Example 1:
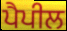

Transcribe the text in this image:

ਪੈਪੀਲ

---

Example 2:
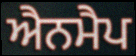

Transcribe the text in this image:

ਐਨਮੈਪ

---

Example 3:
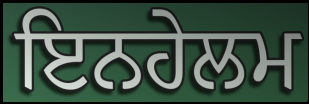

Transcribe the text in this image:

ਇਨਹੇਲਮ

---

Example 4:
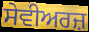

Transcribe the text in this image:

ਸੇਵੀਅਰਜ਼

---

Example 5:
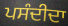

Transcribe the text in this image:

ਪਸੰਦੀਦਾ